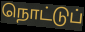
நொட்டுப்